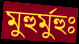
মুহুর্মুহুঃ